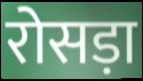
रोसड़ा